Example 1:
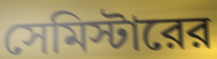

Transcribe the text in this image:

সেমিস্টারের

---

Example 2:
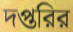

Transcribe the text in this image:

দপ্তরির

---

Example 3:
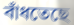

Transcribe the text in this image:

বাঁধতেছে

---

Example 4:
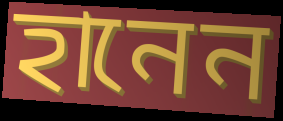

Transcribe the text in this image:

হানেন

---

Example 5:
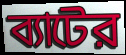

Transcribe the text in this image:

ব্যাটের